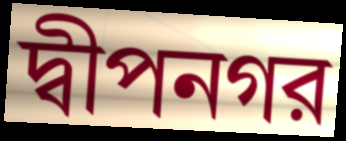
দ্বীপনগর